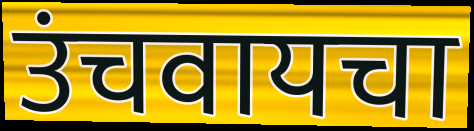
उंचवायचा